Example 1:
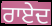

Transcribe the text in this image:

ਰਾਏਦ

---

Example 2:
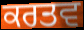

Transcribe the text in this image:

ਕਰਤਵ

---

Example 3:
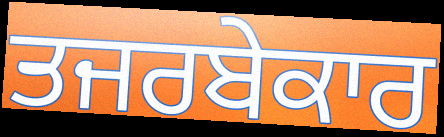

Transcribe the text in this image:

ਤਜਰਬੇਕਾਰ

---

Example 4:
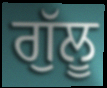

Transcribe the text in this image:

ਗੁੱਲੂ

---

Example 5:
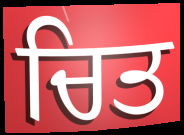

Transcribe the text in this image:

ਚਿਤ